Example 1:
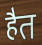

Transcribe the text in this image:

हैत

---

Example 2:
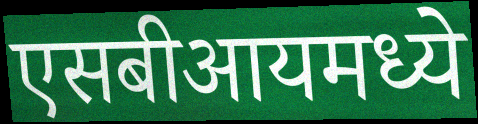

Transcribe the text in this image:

एसबीआयमध्ये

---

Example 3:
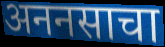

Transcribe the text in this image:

अननसाचा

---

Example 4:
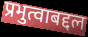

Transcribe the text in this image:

प्रभुत्वाबद्दल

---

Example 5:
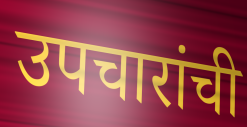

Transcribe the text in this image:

उपचारांची